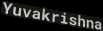
Yuvakrishna